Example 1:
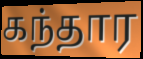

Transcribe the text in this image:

கந்தார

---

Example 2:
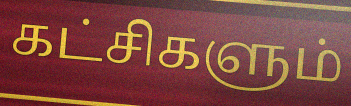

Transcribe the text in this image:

கட்சிகளும்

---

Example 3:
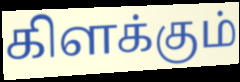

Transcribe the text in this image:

கிளக்கும்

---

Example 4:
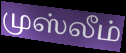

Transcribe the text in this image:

முஸ்லீம்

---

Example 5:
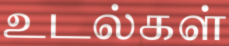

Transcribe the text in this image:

உடல்கள்